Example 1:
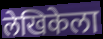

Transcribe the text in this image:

लेखिकेला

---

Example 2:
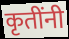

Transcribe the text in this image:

कृतींनी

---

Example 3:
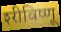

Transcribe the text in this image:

श्रीविष्णू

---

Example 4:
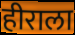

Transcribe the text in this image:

हीराला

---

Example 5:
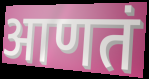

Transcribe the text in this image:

आणतं